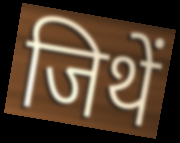
जिथें